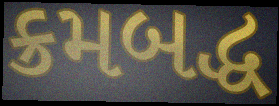
ક્રમબદ્ધ